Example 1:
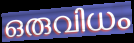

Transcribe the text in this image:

ഒരുവിധം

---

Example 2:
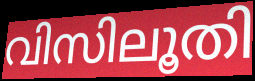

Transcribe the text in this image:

വിസിലൂതി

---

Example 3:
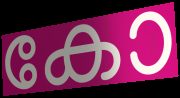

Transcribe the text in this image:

കോ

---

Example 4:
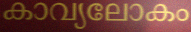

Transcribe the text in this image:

കാവ്യലോകം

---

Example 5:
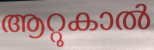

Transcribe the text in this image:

ആറ്റുകാൽ